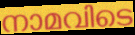
നാമവിടെ